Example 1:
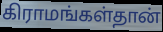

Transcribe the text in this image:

கிராமங்கள்தான்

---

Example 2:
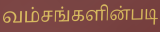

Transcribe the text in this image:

வம்சங்களின்படி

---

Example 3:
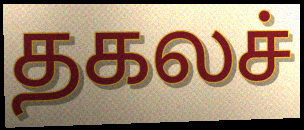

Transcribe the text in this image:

தகலச்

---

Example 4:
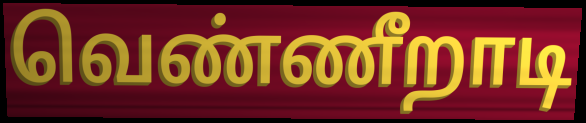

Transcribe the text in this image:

வெண்ணீறாடி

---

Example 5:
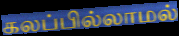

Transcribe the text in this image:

கலப்பில்லாமல்